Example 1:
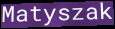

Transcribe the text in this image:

Matyszak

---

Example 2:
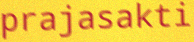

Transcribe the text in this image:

prajasakti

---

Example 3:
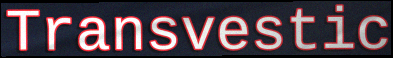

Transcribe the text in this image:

Transvestic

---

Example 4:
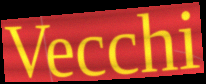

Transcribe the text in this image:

Vecchi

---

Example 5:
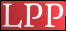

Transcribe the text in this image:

LPP